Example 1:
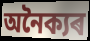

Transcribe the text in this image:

অনৈক্যৰ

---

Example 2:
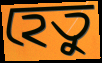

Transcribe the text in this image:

হেতু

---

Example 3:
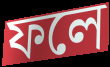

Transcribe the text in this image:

ফলে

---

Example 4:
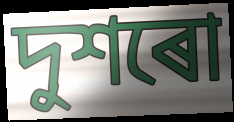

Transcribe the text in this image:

দুশৰো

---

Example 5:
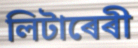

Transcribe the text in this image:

লিটাৰেৰী